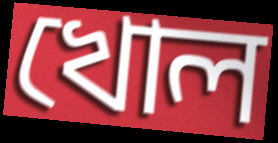
খোল